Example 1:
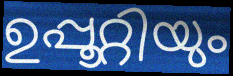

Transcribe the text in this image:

ഉപ്പൂറ്റിയും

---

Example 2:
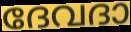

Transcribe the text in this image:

ദേവദാ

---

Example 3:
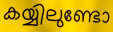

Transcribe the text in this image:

കയ്യിലുണ്ടോ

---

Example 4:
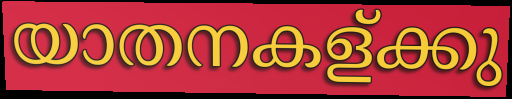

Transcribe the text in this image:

യാതനകള്ക്കു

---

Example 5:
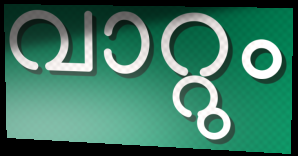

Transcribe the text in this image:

വാറ്റും